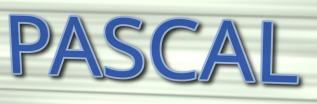
PASCAL